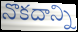
నొకదాన్ని